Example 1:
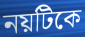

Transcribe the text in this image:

নয়টিকে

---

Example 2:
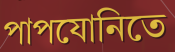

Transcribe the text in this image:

পাপযোনিতে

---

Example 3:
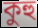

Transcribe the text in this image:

কুহু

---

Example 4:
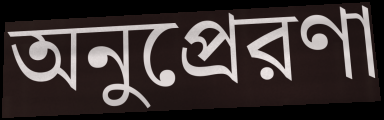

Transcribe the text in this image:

অনুপ্রেরণা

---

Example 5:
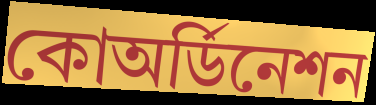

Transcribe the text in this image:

কোঅর্ডিনেশন